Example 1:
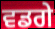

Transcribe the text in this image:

ਵਡਗੇ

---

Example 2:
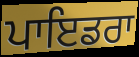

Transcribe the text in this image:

ਪਾਇਡਰਾ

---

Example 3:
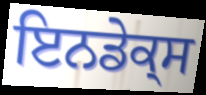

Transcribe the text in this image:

ਇਨਡੇਕ੍ਸ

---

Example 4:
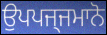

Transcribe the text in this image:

ਉਪਪਜ੍ਜਮਾਨੋ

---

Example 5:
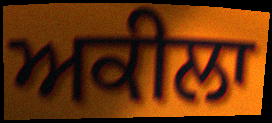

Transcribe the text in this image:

ਅਕੀਲਾ